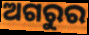
ଅଗରୁର